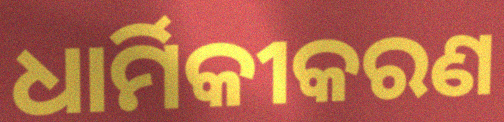
ଧାର୍ମିକୀକରଣ